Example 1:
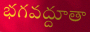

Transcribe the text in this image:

భగవద్దూతా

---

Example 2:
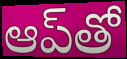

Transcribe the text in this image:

ఆప్‌తో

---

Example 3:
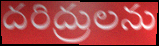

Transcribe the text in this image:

దరిద్రులను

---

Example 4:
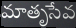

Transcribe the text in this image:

మాతృసేవ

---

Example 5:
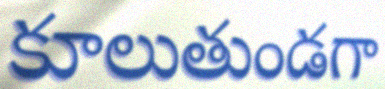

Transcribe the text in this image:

కూలుతుండగా